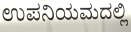
ಉಪನಿಯಮದಲ್ಲಿ